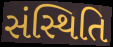
સંસ્થિતિ